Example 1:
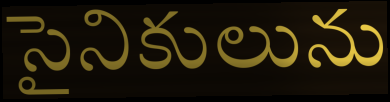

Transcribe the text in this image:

సైనికులును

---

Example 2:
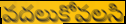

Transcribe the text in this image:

వదలుకోవలసి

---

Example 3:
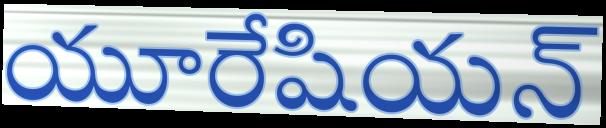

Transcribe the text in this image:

యూరేషియన్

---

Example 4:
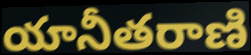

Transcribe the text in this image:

యానీతరాణి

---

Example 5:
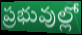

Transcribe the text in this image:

ప్రభువుల్లో